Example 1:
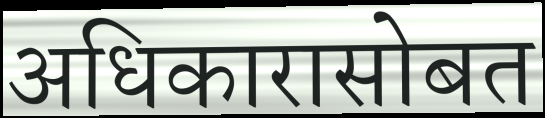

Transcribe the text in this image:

अधिकारासोबत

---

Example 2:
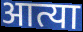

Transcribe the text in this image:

आत्या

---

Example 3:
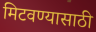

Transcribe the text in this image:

मिटवण्यासाठी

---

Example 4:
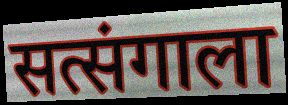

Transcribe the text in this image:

सत्संगाला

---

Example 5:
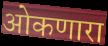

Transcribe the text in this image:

ओकणारा